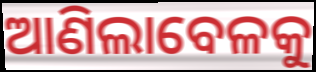
ଆଣିଲାବେଳକୁ